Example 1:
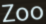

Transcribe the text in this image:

Zoo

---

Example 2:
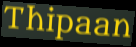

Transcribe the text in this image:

Thipaan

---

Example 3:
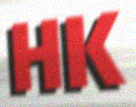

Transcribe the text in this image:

HK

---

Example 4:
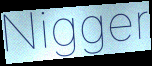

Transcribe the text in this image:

Nigger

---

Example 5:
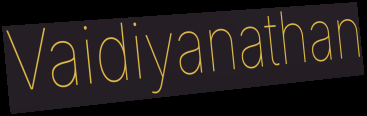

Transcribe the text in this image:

Vaidiyanathan